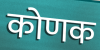
कोणक